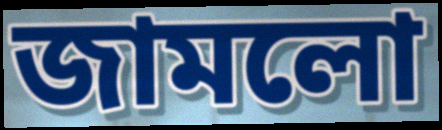
জামলো